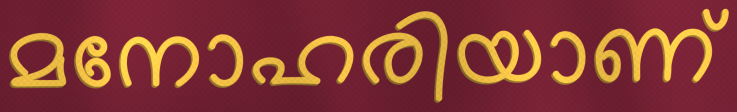
മനോഹരിയാണ്